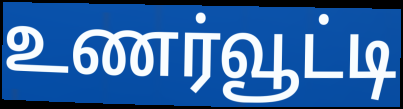
உணர்வூட்டி